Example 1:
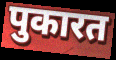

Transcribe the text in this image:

पुकारत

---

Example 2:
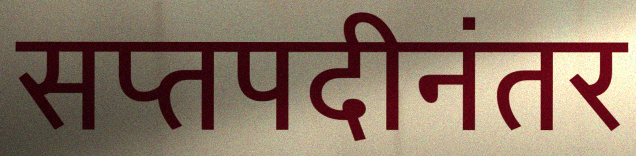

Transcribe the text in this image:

सप्तपदीनंतर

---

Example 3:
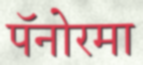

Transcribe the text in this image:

पॅनोरमा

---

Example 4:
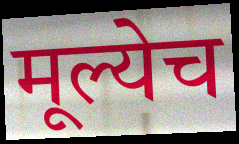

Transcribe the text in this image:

मूल्येच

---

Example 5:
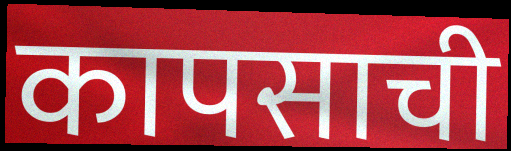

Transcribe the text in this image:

कापसाची